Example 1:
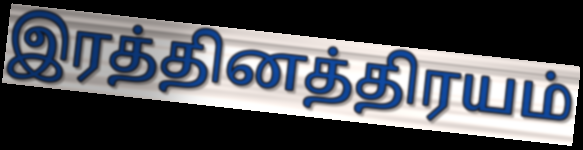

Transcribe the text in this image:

இரத்தினத்திரயம்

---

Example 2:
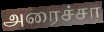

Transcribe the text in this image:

அரைச்சா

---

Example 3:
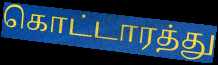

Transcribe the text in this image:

கொட்டாரத்து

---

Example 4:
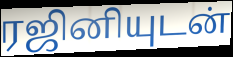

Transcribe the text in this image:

ரஜினியுடன்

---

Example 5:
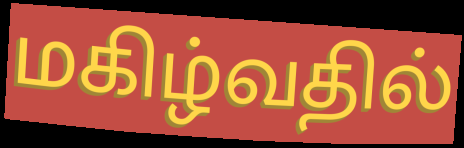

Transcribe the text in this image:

மகிழ்வதில்